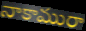
నాకామురా